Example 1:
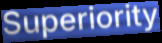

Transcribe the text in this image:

Superiority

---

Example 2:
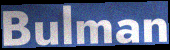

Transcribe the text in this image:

Bulman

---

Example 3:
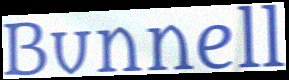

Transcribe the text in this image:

Bunnell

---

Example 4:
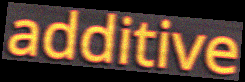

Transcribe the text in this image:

additive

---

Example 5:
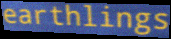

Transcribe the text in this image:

earthlings